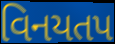
વિનયતપ